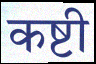
कष्टी